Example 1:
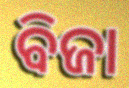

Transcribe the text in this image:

ବିଜା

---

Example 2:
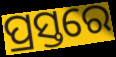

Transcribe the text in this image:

ପ୍ରସ୍ତରେ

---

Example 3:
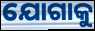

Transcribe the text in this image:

ଯୋଗାକୁ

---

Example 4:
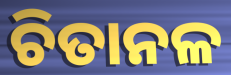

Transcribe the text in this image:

ଚିତାନଳ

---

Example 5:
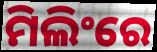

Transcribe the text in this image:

ମିଲିଂରେ